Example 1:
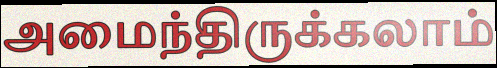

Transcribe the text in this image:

அமைந்திருக்கலாம்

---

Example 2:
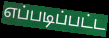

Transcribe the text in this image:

எப்படிப்பட்ட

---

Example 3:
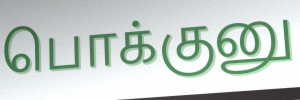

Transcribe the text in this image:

பொக்குனு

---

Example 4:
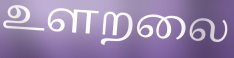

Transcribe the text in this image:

உளறலை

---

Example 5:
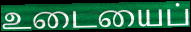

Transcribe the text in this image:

உடையைப்